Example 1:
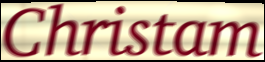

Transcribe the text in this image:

Christam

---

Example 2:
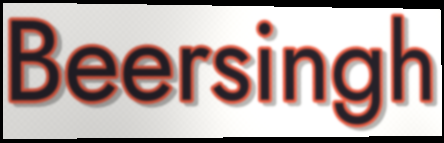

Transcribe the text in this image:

Beersingh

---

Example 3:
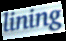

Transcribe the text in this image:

lining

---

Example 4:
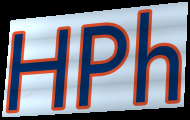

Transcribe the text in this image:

HPh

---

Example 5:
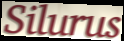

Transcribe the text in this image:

Silurus